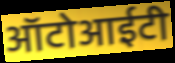
ऑटोआईटी